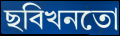
ছবিখনতো